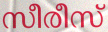
സീരീസ്